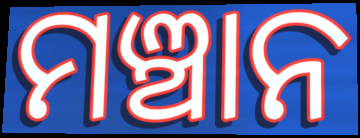
ମଞ୍ଚାନ